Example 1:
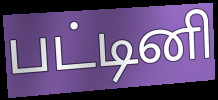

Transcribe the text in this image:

பட்டினி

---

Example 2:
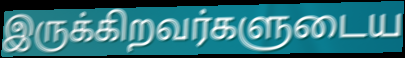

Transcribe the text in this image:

இருக்கிறவர்களுடைய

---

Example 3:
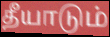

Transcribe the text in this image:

தீயாடும்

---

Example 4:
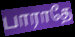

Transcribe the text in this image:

பாராதே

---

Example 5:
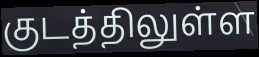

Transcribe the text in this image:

குடத்திலுள்ள